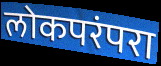
लोकपरंपरा